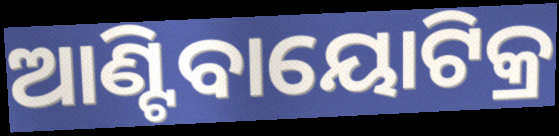
ଆଣ୍ଟିବାୟୋଟିକ୍ର